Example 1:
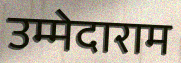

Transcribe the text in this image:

उम्मेदाराम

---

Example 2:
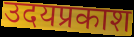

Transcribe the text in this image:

उदयप्रकाश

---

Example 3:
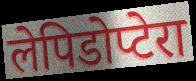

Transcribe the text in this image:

लेपिडोप्टेरा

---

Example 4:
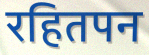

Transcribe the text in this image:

रहितपन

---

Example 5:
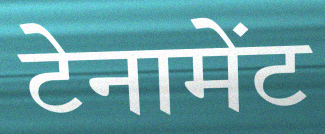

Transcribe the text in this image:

टेनामेंट